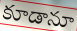
కూడానూ